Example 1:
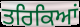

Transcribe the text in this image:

ਤਰਿਕਿਆਂ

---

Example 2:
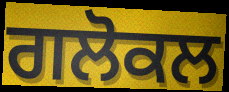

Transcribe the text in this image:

ਗਲੋਕਲ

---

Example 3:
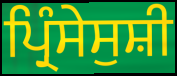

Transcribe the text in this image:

ਪ੍ਰਿੰਸੇਸੁਸ਼ੀ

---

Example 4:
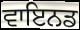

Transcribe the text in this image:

ਵਾਇਨਡ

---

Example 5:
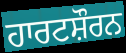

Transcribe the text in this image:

ਹਾਰਟਸ਼ੌਰਨ